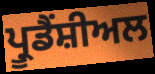
ਪ੍ਰੂਡੈਂਸ਼ੀਅਲ